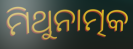
ମିଥୁନାତ୍ମକ